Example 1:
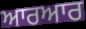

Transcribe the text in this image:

ਆਰਆਰ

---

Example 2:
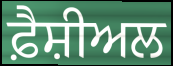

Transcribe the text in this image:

ਫ਼ੈਸ਼ੀਅਲ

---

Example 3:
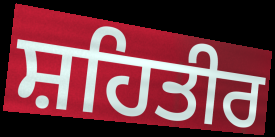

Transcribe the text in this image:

ਸ਼ਹਿਤੀਰ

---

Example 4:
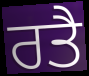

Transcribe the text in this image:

ਰਤੈ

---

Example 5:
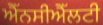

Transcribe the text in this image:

ਐੱਨਸੀਐੱਲਟੀ